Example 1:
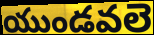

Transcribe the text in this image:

యుండవలె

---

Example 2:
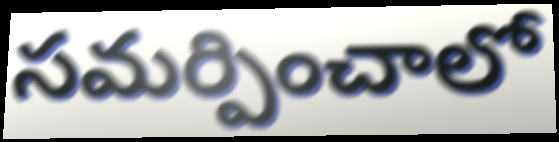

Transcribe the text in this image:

సమర్పించాలో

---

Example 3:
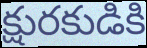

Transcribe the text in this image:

క్షురకుడికి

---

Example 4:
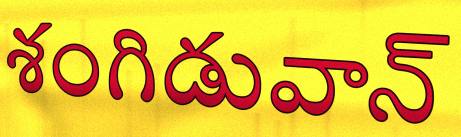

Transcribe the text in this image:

శంగిడువాన్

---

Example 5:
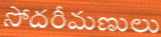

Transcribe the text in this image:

సోదరీమణులు